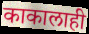
काकालाही